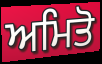
ਅਮਿਤੋ